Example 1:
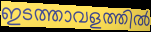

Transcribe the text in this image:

ഇടത്താവളത്തിൽ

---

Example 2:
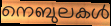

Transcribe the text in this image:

നെബുലകൾ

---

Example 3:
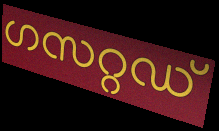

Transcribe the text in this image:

ഗസറ്റഡ്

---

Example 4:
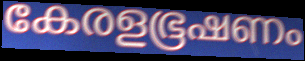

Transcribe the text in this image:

കേരളഭൂഷണം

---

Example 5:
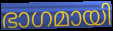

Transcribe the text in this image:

ഭാഗമായി